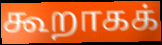
கூறாகக்